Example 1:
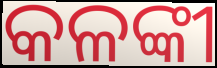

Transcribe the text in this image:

କଳଙ୍କୀ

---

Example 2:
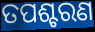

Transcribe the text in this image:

ତପଶ୍ଚରଣ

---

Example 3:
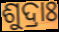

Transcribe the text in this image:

ଶୁଦ୍ରାଃ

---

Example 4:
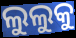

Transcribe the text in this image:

ଲୁଲୁକୁ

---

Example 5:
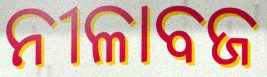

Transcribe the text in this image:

ନୀଳାବଜ